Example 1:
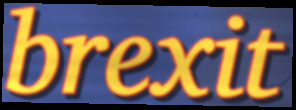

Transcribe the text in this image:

brexit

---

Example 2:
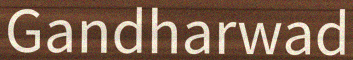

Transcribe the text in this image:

Gandharwad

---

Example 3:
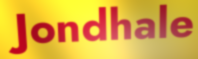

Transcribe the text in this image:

Jondhale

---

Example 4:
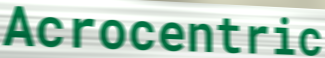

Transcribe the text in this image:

Acrocentric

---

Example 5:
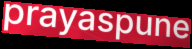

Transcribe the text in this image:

prayaspune